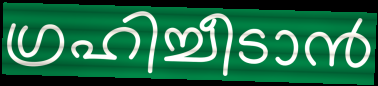
ഗ്രഹിച്ചീടാൻ